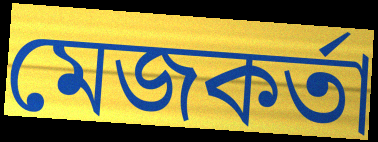
মেজকর্তা